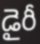
డైరీ